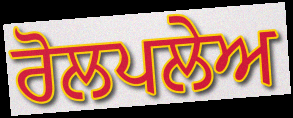
ਰੋਲਪਲੇਅ